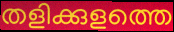
തളിക്കുളത്തെ